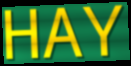
HAY